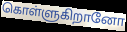
கொள்ளுகிறானோ